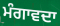
ਮੰਗਾਵਦਾ